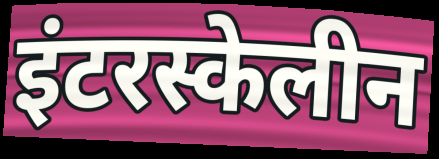
इंटरस्केलीन